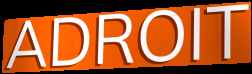
ADROIT